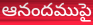
ఆనందముపై